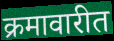
क्रमावारीत